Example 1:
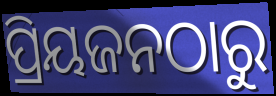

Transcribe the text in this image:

ପ୍ରିୟଜନଠାରୁ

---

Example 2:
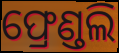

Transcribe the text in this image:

ଫ୍ରେଣ୍ଡଲି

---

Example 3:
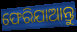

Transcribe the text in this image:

ଫେରିଯାଆନ୍ତୁ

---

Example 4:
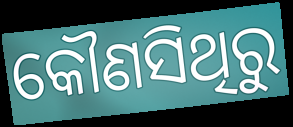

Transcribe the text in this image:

କୌଣସିଥିରୁ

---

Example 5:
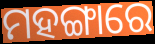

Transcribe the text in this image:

ମହଙ୍ଗାରେ